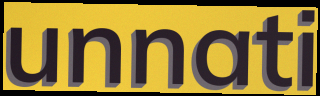
unnati